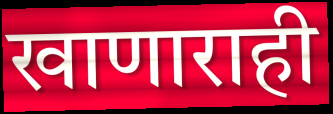
खाणाराही